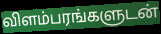
விளம்பரங்களுடன்